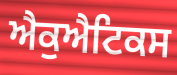
ਐਕੁਐਟਿਕਸ